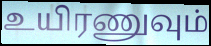
உயிரணுவும்